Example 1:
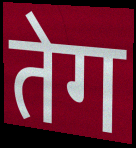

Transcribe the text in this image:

तेग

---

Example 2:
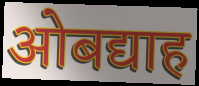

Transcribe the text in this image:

ओबद्याह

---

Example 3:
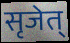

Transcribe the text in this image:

सृजेत्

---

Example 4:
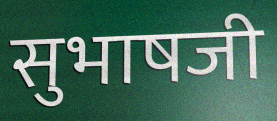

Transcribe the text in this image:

सुभाषजी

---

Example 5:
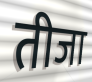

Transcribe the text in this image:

तीजा